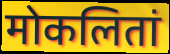
मोकलितां